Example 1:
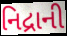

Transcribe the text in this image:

નિદ્રાની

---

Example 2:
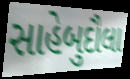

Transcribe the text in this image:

સાહેબુદૌલા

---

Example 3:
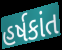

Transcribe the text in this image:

હર્ષકાંત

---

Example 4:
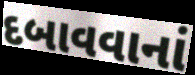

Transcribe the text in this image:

દબાવવાનાં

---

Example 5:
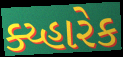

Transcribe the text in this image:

ક્ય્હારેક